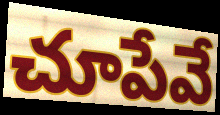
చూపేవే